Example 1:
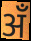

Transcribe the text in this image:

अँ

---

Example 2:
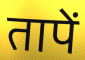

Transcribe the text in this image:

तापें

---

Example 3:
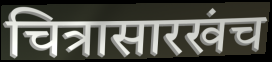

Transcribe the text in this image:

चित्रासारखंच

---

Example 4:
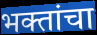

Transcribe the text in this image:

भक्तांचा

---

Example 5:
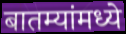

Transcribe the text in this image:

बातम्यांमध्ये